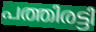
പത്തിരട്ടി